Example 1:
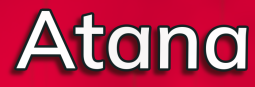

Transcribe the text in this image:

Atana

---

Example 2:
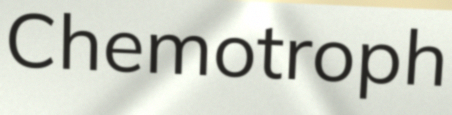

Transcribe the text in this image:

Chemotroph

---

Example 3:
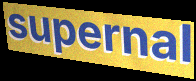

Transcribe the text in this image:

supernal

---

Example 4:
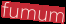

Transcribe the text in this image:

fumum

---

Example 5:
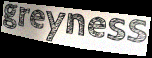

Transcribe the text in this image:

greyness